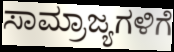
ಸಾಮ್ರಾಜ್ಯಗಳಿಗೆ